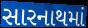
સારનાથમાં